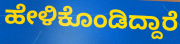
ಹೇಳಿಕೊಂಡಿದ್ದಾರೆ